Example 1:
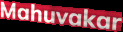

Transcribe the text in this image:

Mahuvakar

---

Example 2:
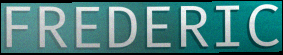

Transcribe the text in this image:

FREDERIC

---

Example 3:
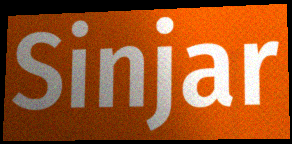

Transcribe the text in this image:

Sinjar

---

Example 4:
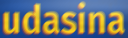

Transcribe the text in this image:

udasina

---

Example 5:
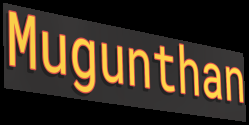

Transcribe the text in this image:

Mugunthan